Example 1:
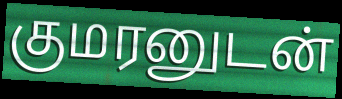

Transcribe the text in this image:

குமரனுடன்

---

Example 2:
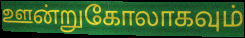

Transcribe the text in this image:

ஊன்றுகோலாகவும்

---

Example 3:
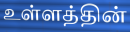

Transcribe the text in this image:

உள்ளத்தின்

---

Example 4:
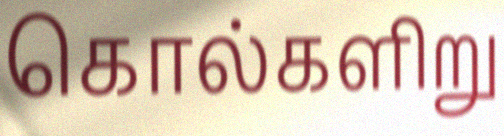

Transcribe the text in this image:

கொல்களிறு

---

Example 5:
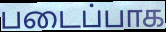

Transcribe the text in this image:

படைப்பாக